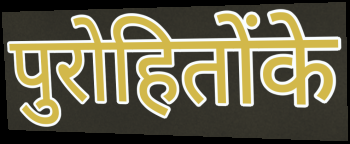
पुरोहितोंके